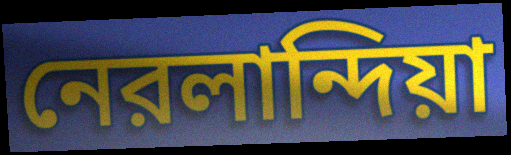
নেরলান্দিয়া